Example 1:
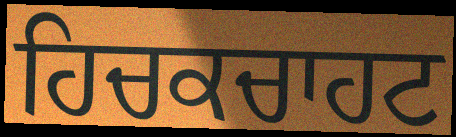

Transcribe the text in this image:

ਹਿਚਕਚਾਹਟ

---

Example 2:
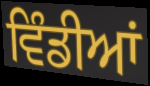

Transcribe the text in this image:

ਵਿੰਡੀਆਂ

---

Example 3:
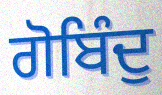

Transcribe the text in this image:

ਗੋਬਿੰਦੁ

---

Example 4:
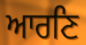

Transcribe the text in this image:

ਆਰਣਿ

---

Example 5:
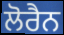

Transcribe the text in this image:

ਲੋਰੈਨ